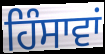
ਹਿੰਸਾਵਾਂ